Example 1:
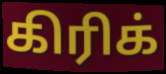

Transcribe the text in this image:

கிரிக்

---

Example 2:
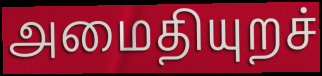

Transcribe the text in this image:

அமைதியுறச்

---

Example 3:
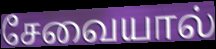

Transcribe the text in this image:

சேவையால்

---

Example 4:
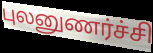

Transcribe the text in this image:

புலனுணர்ச்சி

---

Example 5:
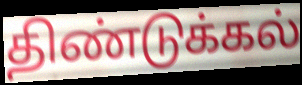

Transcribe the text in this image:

திண்டுக்கல்